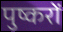
पुष्करों